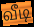
வீடி